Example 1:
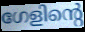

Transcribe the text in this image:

ഗേളിന്റെ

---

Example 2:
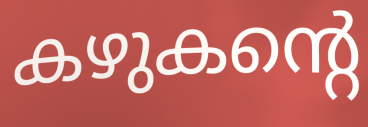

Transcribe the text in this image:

കഴുകന്റെ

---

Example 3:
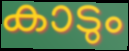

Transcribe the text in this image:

കാടും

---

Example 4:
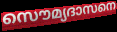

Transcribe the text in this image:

സൌമ്യദാസനെ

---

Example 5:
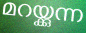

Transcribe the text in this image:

മറയ്ക്കുന്ന